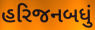
હરિજનબધું